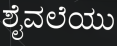
ಶೈವಲೆಯು